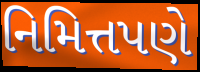
નિમિત્તપણે